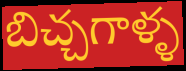
బిచ్చగాళ్ళ